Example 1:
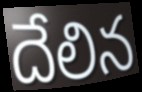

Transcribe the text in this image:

దేలిన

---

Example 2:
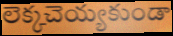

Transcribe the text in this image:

లెక్కచెయ్యకుండా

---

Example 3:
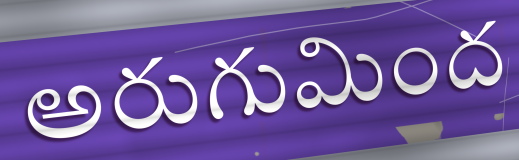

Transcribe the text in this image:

అరుగుమింద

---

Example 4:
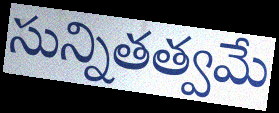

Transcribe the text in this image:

సున్నితత్వమే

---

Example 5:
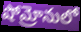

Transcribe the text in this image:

షోమ్రోనులో